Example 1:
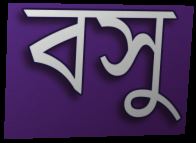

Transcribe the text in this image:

বসু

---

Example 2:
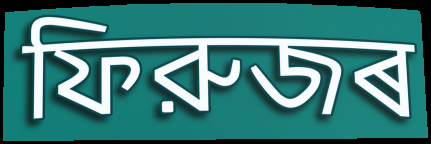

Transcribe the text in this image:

ফিৰুজৰ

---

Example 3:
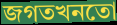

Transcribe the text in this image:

জগতখনতো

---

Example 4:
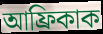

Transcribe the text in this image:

আফ্ৰিকাক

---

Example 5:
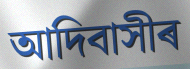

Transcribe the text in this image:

আদিবাসীৰ